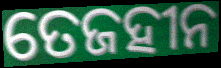
ତେଜହୀନ